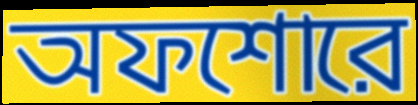
অফশোরে